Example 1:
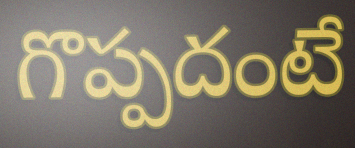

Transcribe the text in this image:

గొప్పదంటే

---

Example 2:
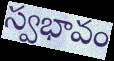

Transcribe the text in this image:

స్వభావం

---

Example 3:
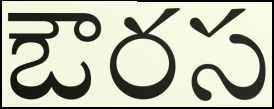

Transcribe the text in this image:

ఔరస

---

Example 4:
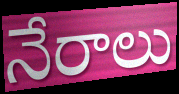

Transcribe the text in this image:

నేరాలు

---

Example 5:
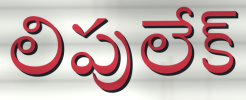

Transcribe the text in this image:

లిపులేక్